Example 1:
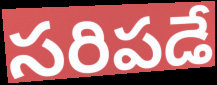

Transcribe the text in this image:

సరిపడే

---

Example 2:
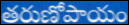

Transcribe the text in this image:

తరుణోపాయం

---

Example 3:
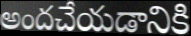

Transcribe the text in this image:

అందచేయడానికి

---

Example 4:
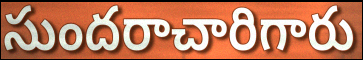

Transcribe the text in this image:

సుందరాచారిగారు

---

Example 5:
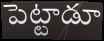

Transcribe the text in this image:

పెట్టాడూ